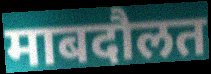
माबदौलत